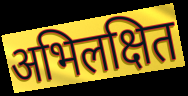
अभिलक्षित